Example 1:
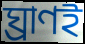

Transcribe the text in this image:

ঘ্রাণই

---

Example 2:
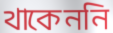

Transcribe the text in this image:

থাকেননি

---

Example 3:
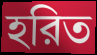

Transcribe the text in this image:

হরিত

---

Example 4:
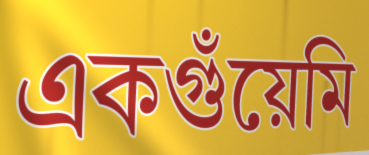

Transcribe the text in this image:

একগুঁয়েমি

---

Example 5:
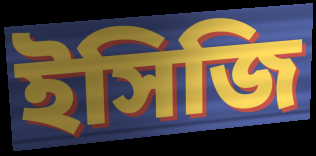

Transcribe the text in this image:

ইসিজি